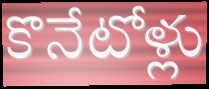
కొనేటోళ్లు